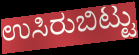
ಉಸಿರುಬಿಟ್ಟು